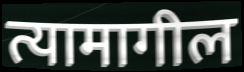
त्यामागील